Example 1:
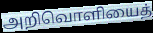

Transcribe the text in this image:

அறிவொளியைத்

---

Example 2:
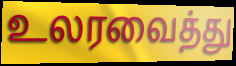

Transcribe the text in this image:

உலரவைத்து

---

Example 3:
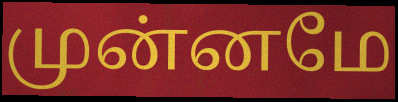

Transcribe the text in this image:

முன்னமே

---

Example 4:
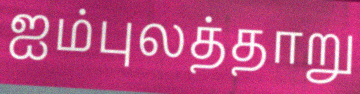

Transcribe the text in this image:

ஐம்புலத்தாறு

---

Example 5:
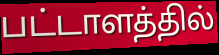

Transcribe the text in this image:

பட்டாளத்தில்